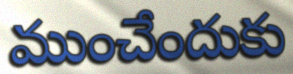
ముంచేందుకు